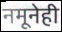
नमूनेही